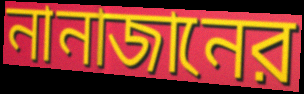
নানাজানের